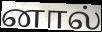
னால்